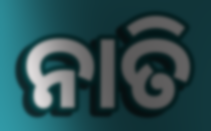
ନାତି